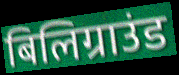
बिलिग्राउंड